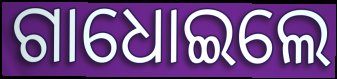
ଗାଧୋଇଲେ